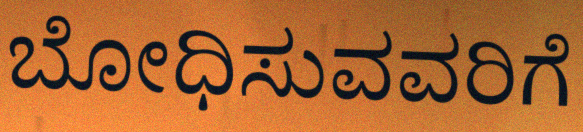
ಬೋಧಿಸುವವರಿಗೆ